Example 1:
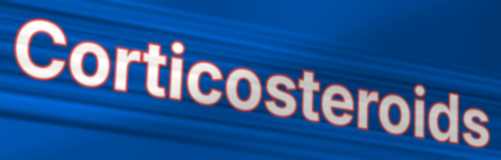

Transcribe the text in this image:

Corticosteroids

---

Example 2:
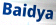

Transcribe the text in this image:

Baidya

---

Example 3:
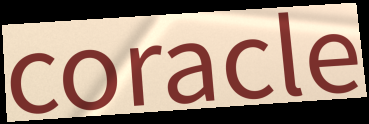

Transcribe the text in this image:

coracle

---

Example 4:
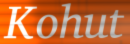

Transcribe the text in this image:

Kohut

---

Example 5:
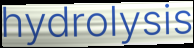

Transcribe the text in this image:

hydrolysis